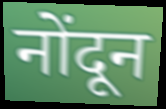
नोंदून